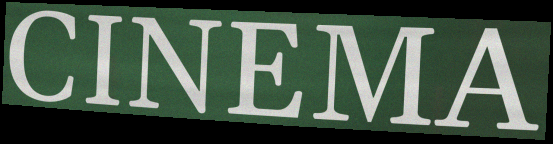
CINEMA